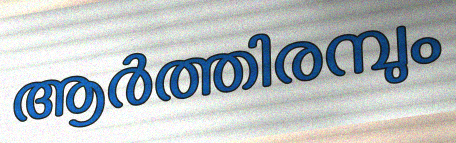
ആർത്തിരമ്പും